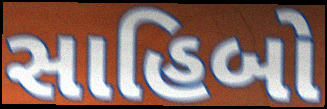
સાહિબો